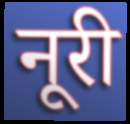
नूरी